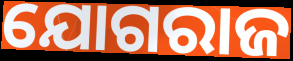
ଯୋଗରାଜ